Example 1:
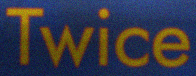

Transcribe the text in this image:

Twice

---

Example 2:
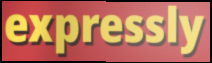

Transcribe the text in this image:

expressly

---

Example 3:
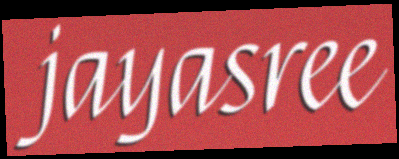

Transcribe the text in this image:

jayasree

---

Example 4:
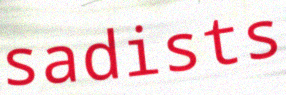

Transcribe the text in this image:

sadists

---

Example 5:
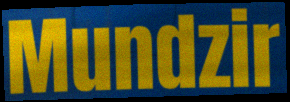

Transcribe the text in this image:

Mundzir